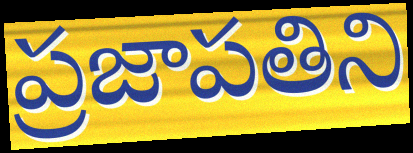
ప్రజాపతిని